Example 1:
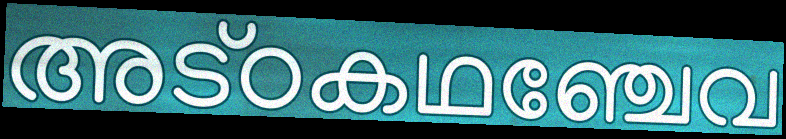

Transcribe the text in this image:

അട്ഠകഥഞ്ചേവ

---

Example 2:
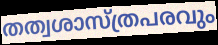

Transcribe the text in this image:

തത്വശാസ്ത്രപരവും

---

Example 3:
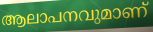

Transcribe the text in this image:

ആലാപനവുമാണ്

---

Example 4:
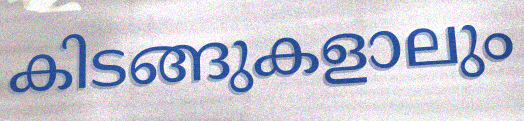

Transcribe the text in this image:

കിടങ്ങുകളാലും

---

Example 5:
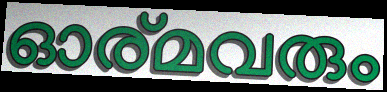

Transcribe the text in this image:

ഓര്മവരും